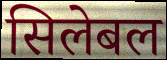
सिलेबल